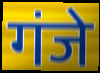
गंजे